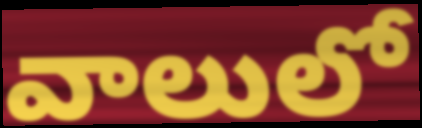
వాలులో